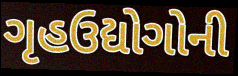
ગૃહઉદ્યોગોની